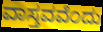
ವಾಸ್ತವವೆಂದು